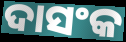
ଦାସଂକ